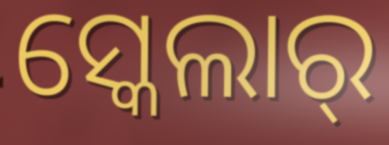
ସ୍କେଲାର୍